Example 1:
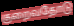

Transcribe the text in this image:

குறைவதோடு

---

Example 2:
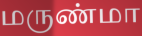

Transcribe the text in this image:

மருண்மா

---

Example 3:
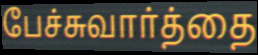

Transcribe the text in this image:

பேச்சுவார்த்தை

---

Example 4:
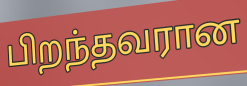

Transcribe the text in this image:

பிறந்தவரான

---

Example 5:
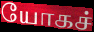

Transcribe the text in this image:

யோகச்